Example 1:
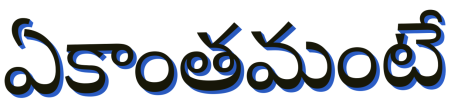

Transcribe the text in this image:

ఏకాంతమంటే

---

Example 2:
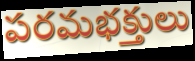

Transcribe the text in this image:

పరమభక్తులు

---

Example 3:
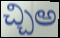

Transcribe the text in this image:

చ్చిఅ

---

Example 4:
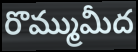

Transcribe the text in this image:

రొమ్ముమీద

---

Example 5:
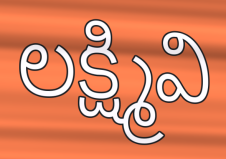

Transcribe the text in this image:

లక్ష్మివి